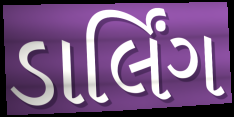
ડાર્લિંગ